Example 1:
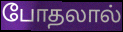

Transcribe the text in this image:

போதலால்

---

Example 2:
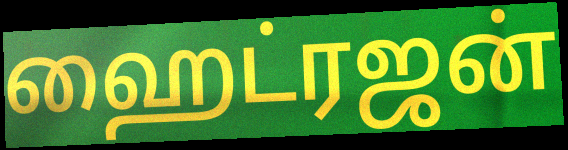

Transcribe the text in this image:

ஹைட்ரஜன்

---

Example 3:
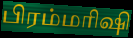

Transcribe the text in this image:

பிரம்மரிஷி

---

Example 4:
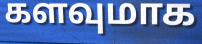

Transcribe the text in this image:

களவுமாக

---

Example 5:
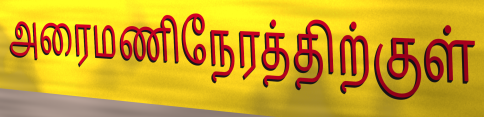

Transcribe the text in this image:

அரைமணிநேரத்திற்குள்